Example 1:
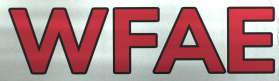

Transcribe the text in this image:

WFAE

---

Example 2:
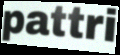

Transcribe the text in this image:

pattri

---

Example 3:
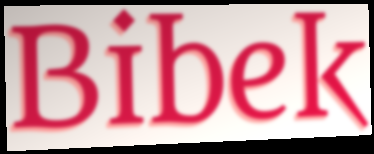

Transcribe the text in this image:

Bibek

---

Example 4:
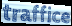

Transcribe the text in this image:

traffice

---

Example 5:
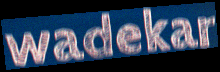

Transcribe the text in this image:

wadekar